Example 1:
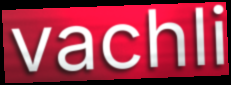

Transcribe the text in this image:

vachli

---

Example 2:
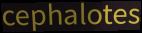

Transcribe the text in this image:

cephalotes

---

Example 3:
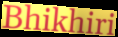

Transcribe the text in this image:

Bhikhiri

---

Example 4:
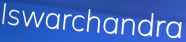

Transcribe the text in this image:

Iswarchandra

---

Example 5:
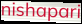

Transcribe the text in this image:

nishapari